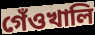
গেঁওখালি